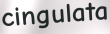
cingulata